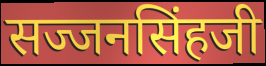
सज्जनसिंहजी